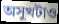
অসুখটাও